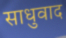
साधुवाद